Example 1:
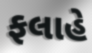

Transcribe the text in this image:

ફલાહે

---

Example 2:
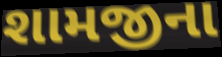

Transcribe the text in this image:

શામજીના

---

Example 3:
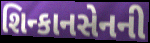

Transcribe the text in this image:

શિન્કાનસેનની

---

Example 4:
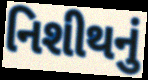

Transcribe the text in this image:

નિશીથનું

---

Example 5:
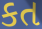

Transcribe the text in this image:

કત